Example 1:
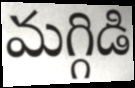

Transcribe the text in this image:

మగ్గిడి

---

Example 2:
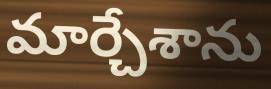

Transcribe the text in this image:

మార్చేశాను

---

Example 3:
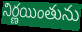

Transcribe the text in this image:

నిర్ణయింతును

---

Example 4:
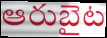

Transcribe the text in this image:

ఆరుబైట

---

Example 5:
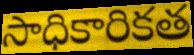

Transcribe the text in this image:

సాధికారికత